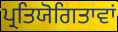
ਪ੍ਰਤਿਯੋਗਿਤਾਵਾਂ